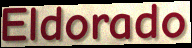
Eldorado